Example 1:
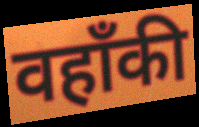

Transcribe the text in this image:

वहाँकी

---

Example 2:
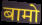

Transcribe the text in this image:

बामो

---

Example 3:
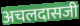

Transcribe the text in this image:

अचलदासजी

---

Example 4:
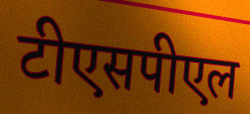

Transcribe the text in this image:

टीएसपीएल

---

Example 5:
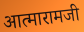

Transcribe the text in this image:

आत्मारामजी